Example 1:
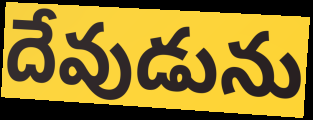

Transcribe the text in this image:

దేవుడును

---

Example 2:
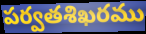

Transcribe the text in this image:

పర్వతశిఖరము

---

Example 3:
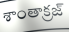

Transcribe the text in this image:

శాంతాక్రజ్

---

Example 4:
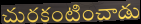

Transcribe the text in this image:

చురకంటించాడు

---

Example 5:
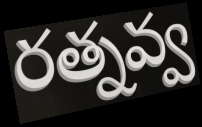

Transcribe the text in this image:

రత్నవ్వ